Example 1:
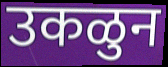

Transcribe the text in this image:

उकळुन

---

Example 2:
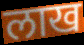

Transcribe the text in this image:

लाख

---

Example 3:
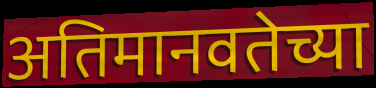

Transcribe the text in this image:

अतिमानवतेच्या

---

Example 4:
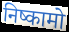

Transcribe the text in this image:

निष्कामो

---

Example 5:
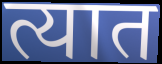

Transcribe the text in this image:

त्यात